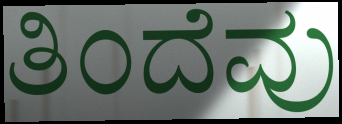
ತಿಂದೆವು